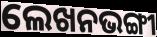
ଲେଖନଭଙ୍ଗୀ